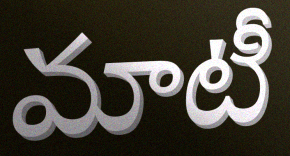
మాటీ